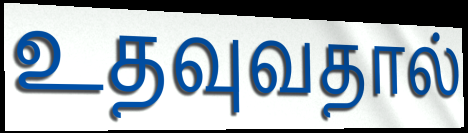
உதவுவதால்